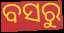
ବସରୁ